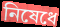
নিষেধে